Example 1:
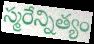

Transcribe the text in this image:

స్మరేన్నిత్యం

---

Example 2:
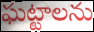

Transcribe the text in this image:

ఘట్టాలను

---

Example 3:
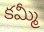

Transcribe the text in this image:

కమ్మీ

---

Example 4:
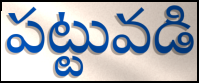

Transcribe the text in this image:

పట్టువడి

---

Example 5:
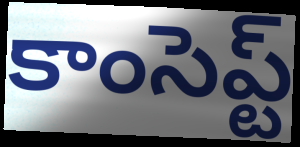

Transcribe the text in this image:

కాంసెప్ట్